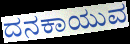
ದನಕಾಯುವ